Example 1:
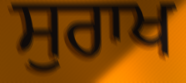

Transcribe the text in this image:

ਸੁਰਾਖ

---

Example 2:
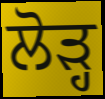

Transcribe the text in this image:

ਲੋੜ੍ਹ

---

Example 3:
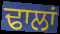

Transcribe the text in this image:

ਢਾਲਾਂ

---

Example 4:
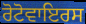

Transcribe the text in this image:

ਰੋਟੋਵਾਇਰਸ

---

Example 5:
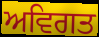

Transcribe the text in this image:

ਅਵਿਗਤ